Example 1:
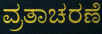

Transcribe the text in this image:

ವ್ರತಾಚರಣೆ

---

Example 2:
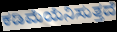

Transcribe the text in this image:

ಕಡಿಮೆಯೆನಿಸುತ್ತದೆ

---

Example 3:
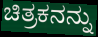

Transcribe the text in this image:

ಚಿತ್ರಕನನ್ನು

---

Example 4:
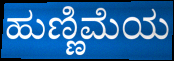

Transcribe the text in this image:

ಹುಣ್ಣಿಮೆಯ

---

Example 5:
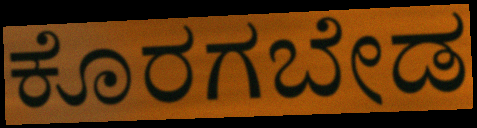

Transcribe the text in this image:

ಕೊರಗಬೇಡ